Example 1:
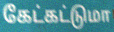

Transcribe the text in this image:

கேட்கட்டுமா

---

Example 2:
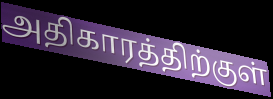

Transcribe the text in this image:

அதிகாரத்திற்குள்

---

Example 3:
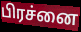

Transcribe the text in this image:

பிரச்னை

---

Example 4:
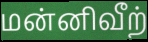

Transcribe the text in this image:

மன்னிவீற்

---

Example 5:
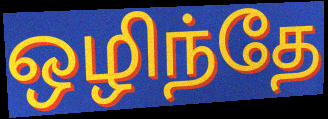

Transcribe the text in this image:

ஒழிந்தே